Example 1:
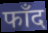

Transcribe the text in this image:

फाँद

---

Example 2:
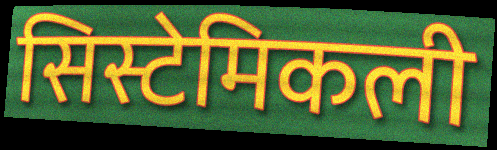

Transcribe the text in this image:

सिस्टेमिकली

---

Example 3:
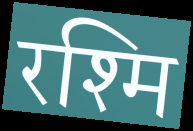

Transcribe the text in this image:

रश्मि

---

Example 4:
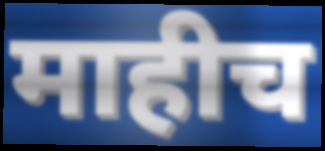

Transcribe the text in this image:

माहीच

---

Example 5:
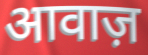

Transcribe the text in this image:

आवाज़